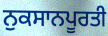
ਨੁਕਸਾਨਪੂਰਤੀ